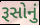
રૂસોનું